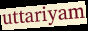
uttariyam